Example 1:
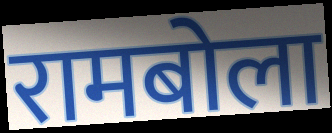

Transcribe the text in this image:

रामबोला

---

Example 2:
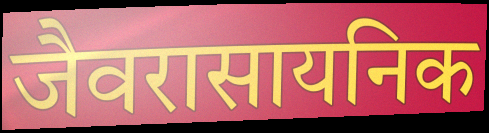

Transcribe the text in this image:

जैवरासायनिक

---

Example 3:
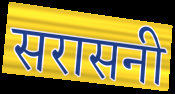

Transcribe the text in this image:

सरासनी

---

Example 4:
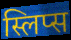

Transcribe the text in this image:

स्लिप्स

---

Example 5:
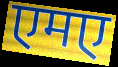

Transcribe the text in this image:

एमए